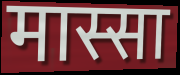
मास्सा